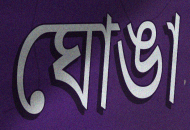
ঘোঙা